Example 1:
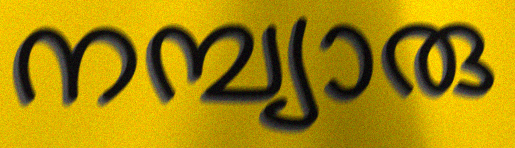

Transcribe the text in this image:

നമ്പ്യാരു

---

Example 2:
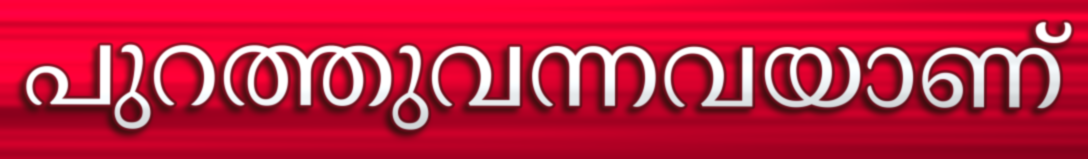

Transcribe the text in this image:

പുറത്തുവന്നവയാണ്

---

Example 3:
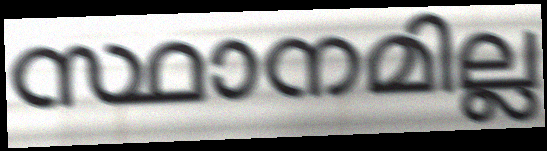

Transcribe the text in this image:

സ്ഥാനമില്ല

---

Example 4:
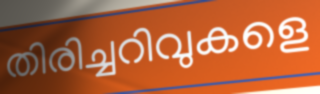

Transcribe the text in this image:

തിരിച്ചറിവുകളെ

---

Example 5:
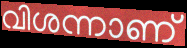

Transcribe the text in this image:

വിശന്നാണ്